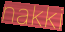
nakki